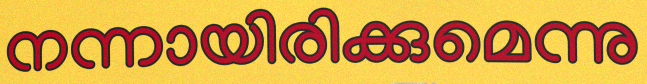
നന്നായിരിക്കുമെന്നു